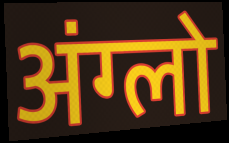
अंग्लो